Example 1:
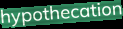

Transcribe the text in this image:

hypothecation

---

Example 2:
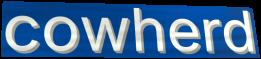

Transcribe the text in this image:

cowherd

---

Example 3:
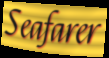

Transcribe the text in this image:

Seafarer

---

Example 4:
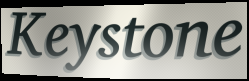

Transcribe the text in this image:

Keystone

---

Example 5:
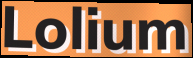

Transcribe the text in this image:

Lolium